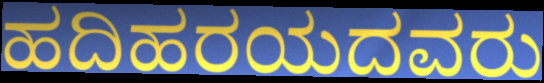
ಹದಿಹರಯದವರು